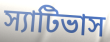
স্যাটিভাস